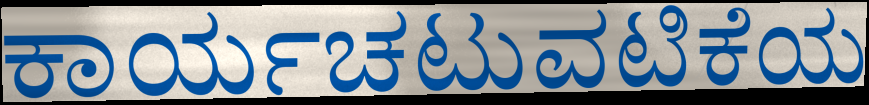
ಕಾರ್ಯಚಟುವಟಿಕೆಯ